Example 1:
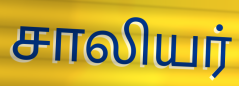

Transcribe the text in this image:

சாலியர்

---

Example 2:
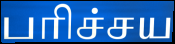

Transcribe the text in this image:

பரிச்சய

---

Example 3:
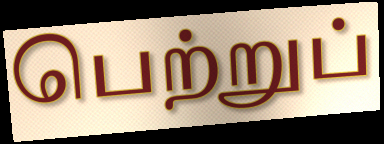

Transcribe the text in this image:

பெற்றுப்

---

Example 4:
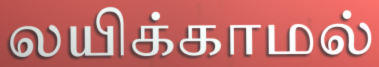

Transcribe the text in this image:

லயிக்காமல்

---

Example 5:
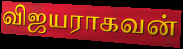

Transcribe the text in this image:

விஜயராகவன்